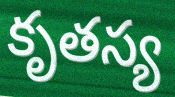
కృతస్య